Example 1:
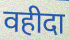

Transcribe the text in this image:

वहीदा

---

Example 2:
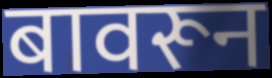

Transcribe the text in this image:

बावरून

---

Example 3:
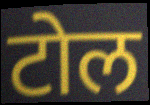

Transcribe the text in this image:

टोल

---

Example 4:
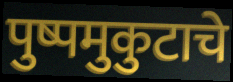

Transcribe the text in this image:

पुष्पमुकुटाचे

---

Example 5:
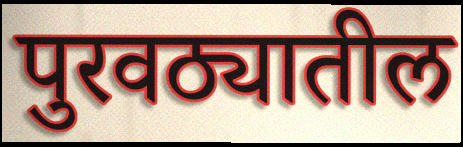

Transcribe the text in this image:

पुरवठ्यातील